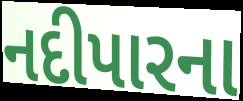
નદીપારના